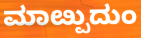
ಮಾೞ್ಪುದುಂ